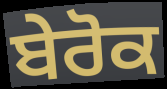
ਬੇਰੋਕ